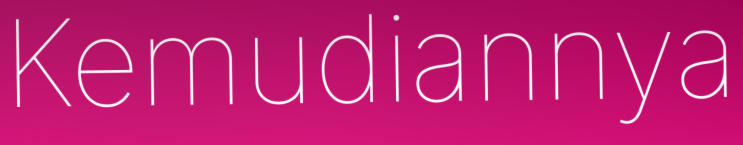
Kemudiannya